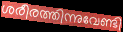
ശരീരത്തിന്നുവേണ്ടി